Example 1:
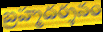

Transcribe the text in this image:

బ్రహ్మదర్శనం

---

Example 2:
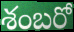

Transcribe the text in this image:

శంబరో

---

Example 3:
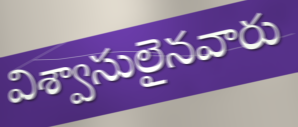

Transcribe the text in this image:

విశ్వాసులైనవారు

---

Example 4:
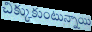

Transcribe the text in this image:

చిక్కుకుంటున్నాయి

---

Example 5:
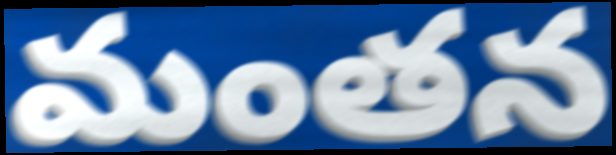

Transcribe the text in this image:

మంతన